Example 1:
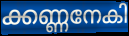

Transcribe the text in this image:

ക്കണ്ണനേകി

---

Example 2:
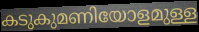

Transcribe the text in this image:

കടുകുമണിയോളമുള്ള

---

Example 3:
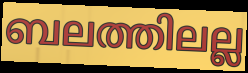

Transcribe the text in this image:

ബലത്തിലല്ല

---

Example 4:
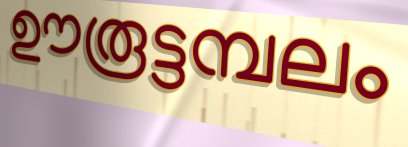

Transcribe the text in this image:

ഊരൂട്ടമ്പലം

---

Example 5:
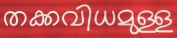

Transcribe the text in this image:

തക്കവിധമുള്ള